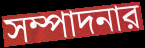
সম্পাদনার